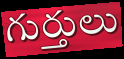
గుర్తులు